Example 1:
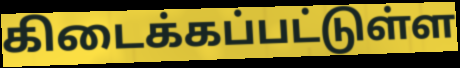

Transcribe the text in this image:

கிடைக்கப்பட்டுள்ள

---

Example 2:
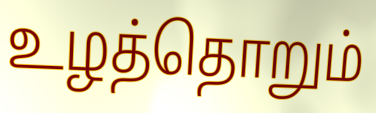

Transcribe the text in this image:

உழத்தொறும்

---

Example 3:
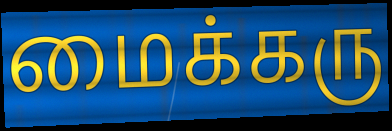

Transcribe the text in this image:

மைக்கரு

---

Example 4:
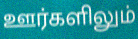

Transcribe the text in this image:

ஊர்களிலும்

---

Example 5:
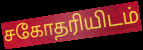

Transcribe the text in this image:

சகோதரியிடம்